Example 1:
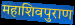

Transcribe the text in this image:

महाशिवपुराण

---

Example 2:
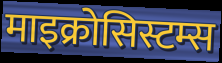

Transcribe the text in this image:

माइक्रोसिस्टम्स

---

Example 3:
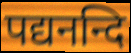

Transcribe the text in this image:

पद्यनन्दि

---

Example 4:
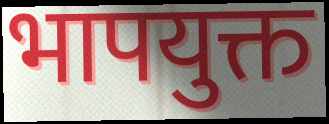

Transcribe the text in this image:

भापयुक्त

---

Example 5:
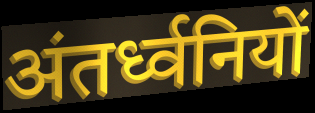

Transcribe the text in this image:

अंतर्ध्वनियों